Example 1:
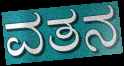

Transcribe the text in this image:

ವತನ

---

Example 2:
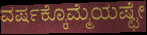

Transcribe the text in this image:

ವರ್ಷಕ್ಕೊಮ್ಮೆಯಷ್ಟೇ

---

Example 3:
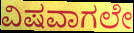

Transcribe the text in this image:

ವಿಷವಾಗಲೇ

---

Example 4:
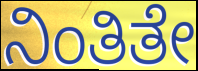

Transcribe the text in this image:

ನಿಂತಿತೇ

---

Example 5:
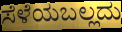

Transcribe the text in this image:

ಸೆಳೆಯಬಲ್ಲದು